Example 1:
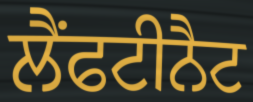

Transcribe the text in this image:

ਲੈਂਫਟੀਨੈਟ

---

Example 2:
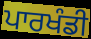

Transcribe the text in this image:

ਪਾਰਖੰਡੀ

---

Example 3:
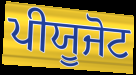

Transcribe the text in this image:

ਪੀਯੂਜੋਟ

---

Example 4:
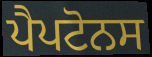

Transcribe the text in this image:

ਪੈਪਟੋਨਸ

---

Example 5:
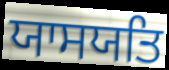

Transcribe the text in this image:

ਯਾਸਯਤਿ